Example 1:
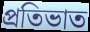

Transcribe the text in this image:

প্রতিভাত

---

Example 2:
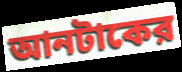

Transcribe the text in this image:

আনটাকের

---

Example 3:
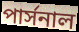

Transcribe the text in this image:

পার্সনাল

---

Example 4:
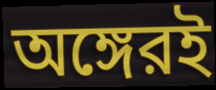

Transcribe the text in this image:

অঙ্গেরই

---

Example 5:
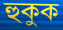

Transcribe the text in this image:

হুকুক